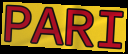
PARI